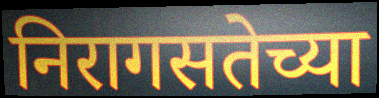
निरागसतेच्या